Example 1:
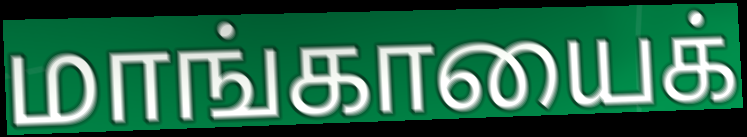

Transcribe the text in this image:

மாங்காயைக்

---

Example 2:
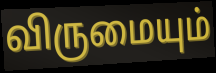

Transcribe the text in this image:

விருமையும்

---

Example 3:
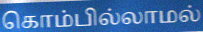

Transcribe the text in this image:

கொம்பில்லாமல்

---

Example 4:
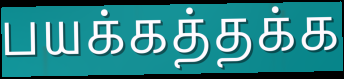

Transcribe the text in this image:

பயக்கத்தக்க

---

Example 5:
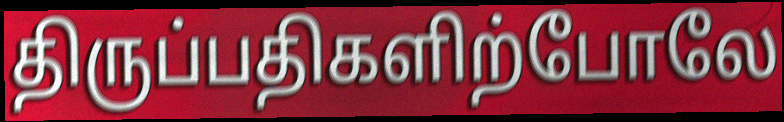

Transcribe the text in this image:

திருப்பதிகளிற்போலே